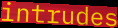
intrudes